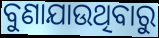
ବୁଣାଯାଉଥିବାରୁ